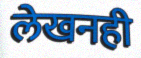
लेखनही